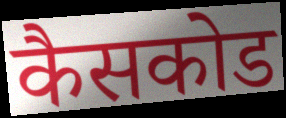
कैसकोड